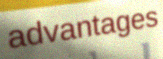
advantages